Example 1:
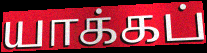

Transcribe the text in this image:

யாக்கப்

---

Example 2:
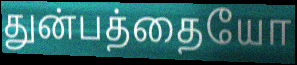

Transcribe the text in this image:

துன்பத்தையோ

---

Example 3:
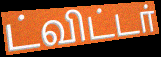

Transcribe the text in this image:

ட்விட்டர்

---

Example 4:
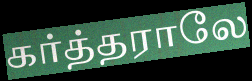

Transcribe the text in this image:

கர்த்தராலே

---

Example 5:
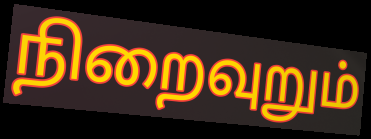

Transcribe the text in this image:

நிறைவுறும்